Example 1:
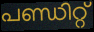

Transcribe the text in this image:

പണ്ഡിറ്റ്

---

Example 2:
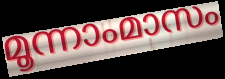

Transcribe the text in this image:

മൂന്നാംമാസം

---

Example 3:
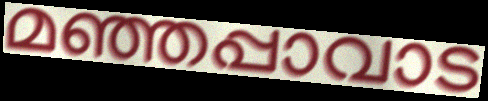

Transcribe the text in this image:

മഞ്ഞപ്പാവാട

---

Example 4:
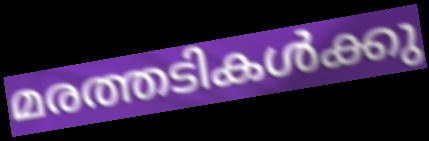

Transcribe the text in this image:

മരത്തടികൾക്കു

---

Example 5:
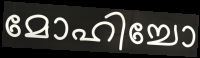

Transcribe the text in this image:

മോഹിച്ചോ